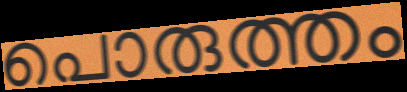
പൊരുത്തം